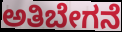
ಅತಿಬೇಗನೆ